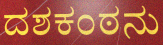
ದಶಕಂಠನು